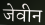
जेवीन